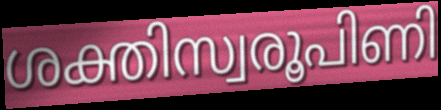
ശക്തിസ്വരൂപിണി